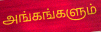
அங்கங்களும்